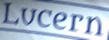
Lucern